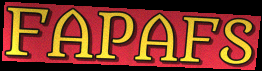
FAPAFS